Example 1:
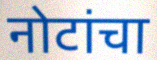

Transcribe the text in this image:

नोटांचा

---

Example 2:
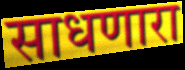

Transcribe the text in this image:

साधणारा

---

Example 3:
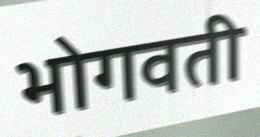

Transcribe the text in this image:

भोगवती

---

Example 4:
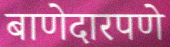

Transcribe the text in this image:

बाणेदारपणे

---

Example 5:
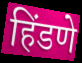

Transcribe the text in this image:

हिंडणे